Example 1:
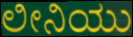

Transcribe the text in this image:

ಲೀನಿಯು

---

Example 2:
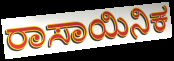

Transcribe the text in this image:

ರಾಸಾಯಿನಿಕ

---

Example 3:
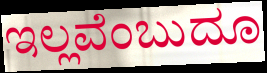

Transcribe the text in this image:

ಇಲ್ಲವೆಂಬುದೂ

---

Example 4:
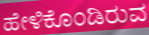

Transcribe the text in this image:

ಹೇಳಿಕೊಂಡಿರುವ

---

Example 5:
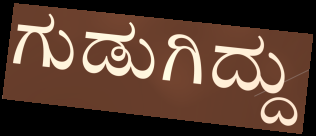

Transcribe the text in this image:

ಗುಡುಗಿದ್ದು